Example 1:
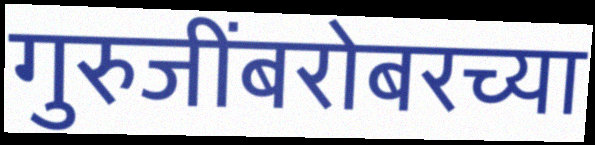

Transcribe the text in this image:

गुरुजींबरोबरच्या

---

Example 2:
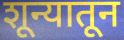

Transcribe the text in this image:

शून्यातून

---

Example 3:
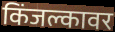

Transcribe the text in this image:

किंजल्कावर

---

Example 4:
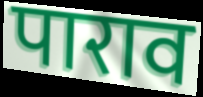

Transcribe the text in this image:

पाराव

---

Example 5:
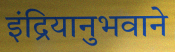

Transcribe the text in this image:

इंद्रियानुभवाने